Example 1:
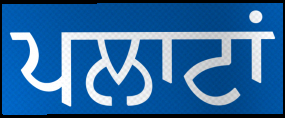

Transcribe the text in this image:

ਪਲਾਟਾਂ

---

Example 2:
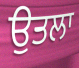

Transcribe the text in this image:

ਉਤਲਾ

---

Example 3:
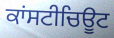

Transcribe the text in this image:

ਕਾਂਸਟੀਚਿਊਟ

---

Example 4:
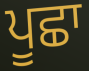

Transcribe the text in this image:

ਪੂਛਾ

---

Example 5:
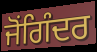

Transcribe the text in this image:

ਜੋਂਗਿੰਦਰ